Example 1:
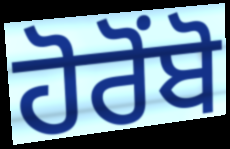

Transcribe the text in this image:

ਹੋਰੋਂਬੋ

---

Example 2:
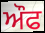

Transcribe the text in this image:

ਔਫ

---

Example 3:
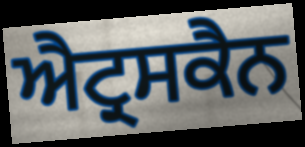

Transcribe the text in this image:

ਐਟ੍ਰਸਕੈਨ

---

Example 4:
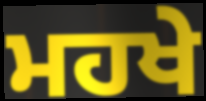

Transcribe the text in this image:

ਮਹਖੇ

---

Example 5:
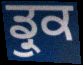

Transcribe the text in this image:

ਡ੍ਰੁਕ